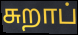
சுறாப்